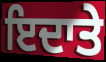
ਇਦਾਤੇ